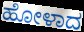
ಹೋಳಾದ